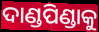
ଦାଣ୍ଡପିଣ୍ଡାକୁ